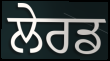
ਲੇਰਡ